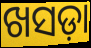
ଖସଡ଼ା